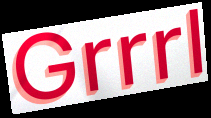
Grrrl